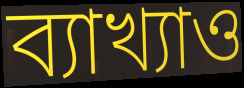
ব্যাখ্যাও